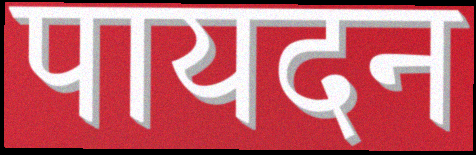
पायदन